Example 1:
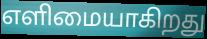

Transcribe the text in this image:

எளிமையாகிறது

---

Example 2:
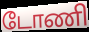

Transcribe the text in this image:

டோணி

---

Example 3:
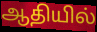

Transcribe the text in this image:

ஆதியில்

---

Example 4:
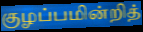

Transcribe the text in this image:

குழப்பமின்றித்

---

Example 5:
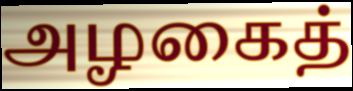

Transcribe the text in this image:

அழகைத்